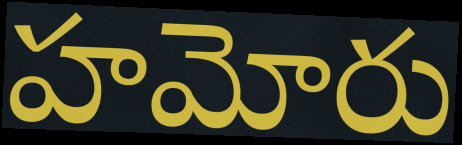
హమోరు